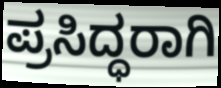
ಪ್ರಸಿದ್ಧರಾಗಿ